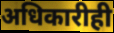
अधिकारीही